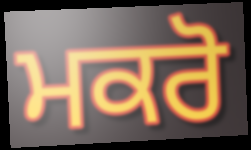
ਮਕਰੋ